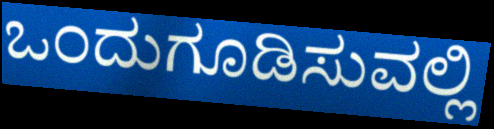
ಒಂದುಗೂಡಿಸುವಲ್ಲಿ